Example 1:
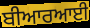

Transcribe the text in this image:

ਬੀਆਰਆਈ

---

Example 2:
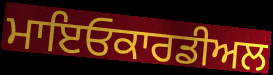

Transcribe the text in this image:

ਮਾਇਓਕਾਰਡੀਅਲ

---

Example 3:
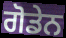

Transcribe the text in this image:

ਗੋਡੇਨ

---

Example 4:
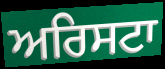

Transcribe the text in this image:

ਅਰਿਸਟਾ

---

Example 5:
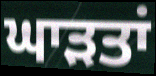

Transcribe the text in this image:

ਘਾਡ਼ਤਾਂ